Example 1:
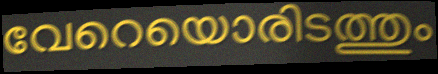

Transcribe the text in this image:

വേറെയൊരിടത്തും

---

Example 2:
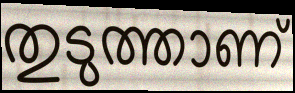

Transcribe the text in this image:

തുടുത്താണ്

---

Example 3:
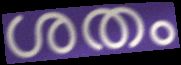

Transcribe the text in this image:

ശതം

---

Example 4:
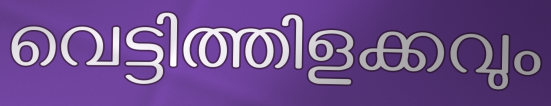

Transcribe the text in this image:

വെട്ടിത്തിളക്കവും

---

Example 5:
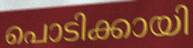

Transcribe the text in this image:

പൊടിക്കായി